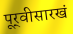
पूर्वीसारखं